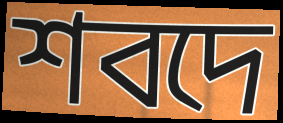
শবদে